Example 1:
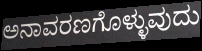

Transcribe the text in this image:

ಅನಾವರಣಗೊಳ್ಳುವುದು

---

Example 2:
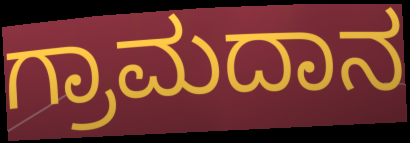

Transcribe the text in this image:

ಗ್ರಾಮದಾನ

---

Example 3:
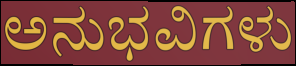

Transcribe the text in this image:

ಅನುಭವಿಗಳು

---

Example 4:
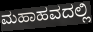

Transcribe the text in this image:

ಮಹಾಹವದಲ್ಲಿ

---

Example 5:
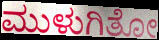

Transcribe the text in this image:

ಮುಳುಗಿತೋ